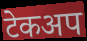
टेकअप